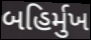
બહિર્મુખ